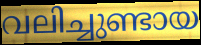
വലിച്ചുണ്ടായ